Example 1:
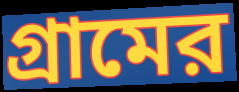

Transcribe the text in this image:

গ্রামের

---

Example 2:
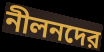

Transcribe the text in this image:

নীলনদের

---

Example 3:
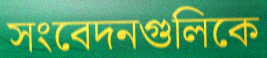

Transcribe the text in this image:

সংবেদনগুলিকে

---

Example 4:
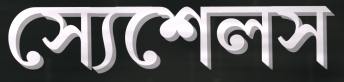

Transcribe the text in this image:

স্যেশেলস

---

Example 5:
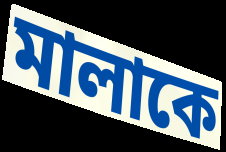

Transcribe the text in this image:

মালাকে